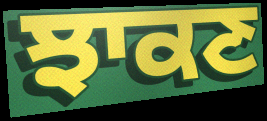
ਝਾਕਣ